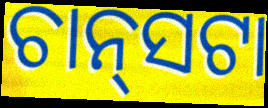
ଚାନ୍‌ସଟା